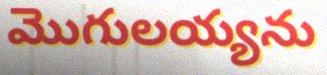
మొగులయ్యను